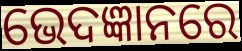
ଭେଦଜ୍ଞାନରେ